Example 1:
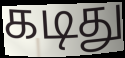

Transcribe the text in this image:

கடிது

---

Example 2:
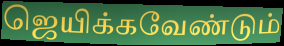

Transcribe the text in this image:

ஜெயிக்கவேண்டும்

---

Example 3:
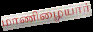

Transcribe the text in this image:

மாணிழையார்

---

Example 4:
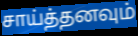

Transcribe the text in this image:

சாய்த்தனவும்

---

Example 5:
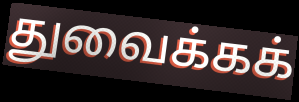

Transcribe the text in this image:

துவைக்கக்